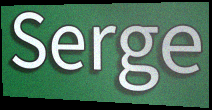
Serge